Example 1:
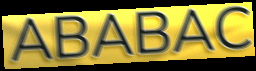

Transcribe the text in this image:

ABABAC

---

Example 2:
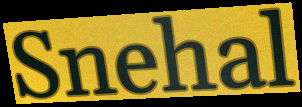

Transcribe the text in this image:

Snehal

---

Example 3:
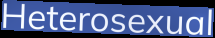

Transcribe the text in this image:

Heterosexual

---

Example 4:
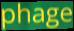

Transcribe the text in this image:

phage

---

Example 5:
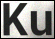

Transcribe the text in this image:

Ku